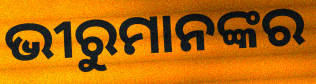
ଭୀରୁମାନଙ୍କର